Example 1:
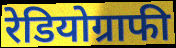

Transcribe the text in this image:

रेडियोग्राफी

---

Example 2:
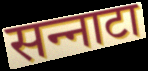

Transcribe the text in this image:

सन्‍नाटा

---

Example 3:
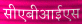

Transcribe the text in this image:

सीएबीआईएस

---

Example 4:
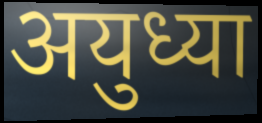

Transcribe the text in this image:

अयुध्या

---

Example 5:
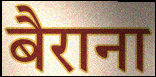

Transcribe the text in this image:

बैराना